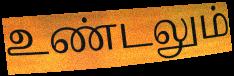
உண்டலும்